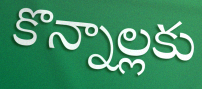
కొన్నాల్లకు